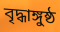
বৃদ্ধাঙ্গুষ্ঠ